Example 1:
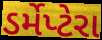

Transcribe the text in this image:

ડર્મેપ્ટેરા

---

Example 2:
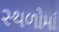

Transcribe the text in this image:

સ્‍થળોમાં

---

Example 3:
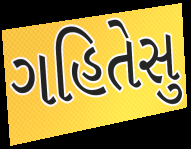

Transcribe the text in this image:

ગહિતેસુ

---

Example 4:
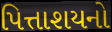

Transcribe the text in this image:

પિત્તાશયનો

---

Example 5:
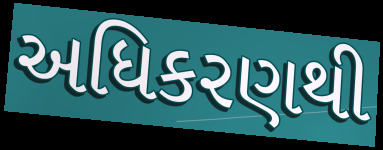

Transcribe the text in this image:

અધિકરણથી